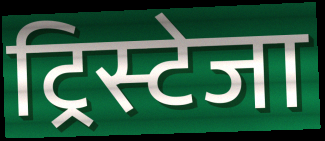
ट्रिस्टेजा